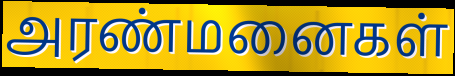
அரண்மனைகள்